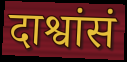
दाश्वांसं